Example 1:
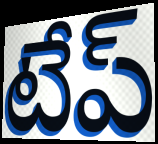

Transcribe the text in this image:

టేప్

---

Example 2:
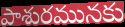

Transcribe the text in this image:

పాశురమునకు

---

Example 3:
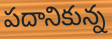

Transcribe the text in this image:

పదానికున్న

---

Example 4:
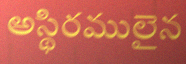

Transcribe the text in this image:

అస్థిరములైన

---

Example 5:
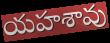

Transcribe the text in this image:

యహశావు